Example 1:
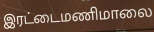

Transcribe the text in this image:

இரட்டைமணிமாலை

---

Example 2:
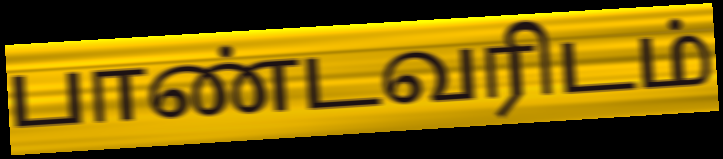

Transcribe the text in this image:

பாண்டவரிடம்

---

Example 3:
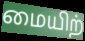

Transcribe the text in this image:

மையிற்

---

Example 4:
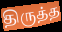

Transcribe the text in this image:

திருத்த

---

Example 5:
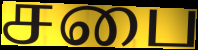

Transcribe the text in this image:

சபை